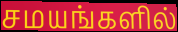
சமயங்களில்